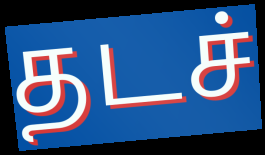
தடச்